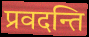
प्रवदन्ति